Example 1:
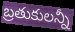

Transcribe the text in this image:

బ్రతుకులన్నీ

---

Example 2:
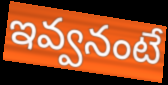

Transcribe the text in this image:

ఇవ్వనంటే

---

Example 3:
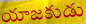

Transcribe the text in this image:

యాజకుడు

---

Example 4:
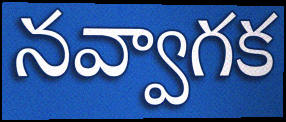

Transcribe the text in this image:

నవ్వాగక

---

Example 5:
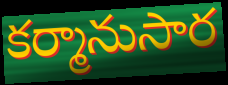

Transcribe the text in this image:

కర్మానుసార